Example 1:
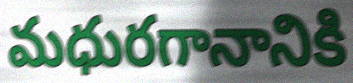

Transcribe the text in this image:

మధురగానానికి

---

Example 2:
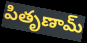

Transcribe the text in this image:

పితృణామ్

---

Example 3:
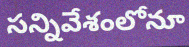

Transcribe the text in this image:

సన్నివేశంలోనూ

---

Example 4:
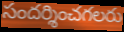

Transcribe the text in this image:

సందర్శించగలరు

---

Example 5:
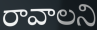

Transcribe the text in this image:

రావాలని